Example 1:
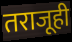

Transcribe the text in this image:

तराजूही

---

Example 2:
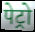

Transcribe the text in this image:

पेट्रो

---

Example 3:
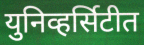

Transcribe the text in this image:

युनिव्हर्सिटीत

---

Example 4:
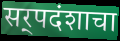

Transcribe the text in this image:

सर्पदंशाचा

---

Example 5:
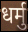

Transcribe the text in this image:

धर्मु